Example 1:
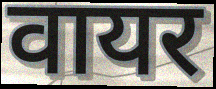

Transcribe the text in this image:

वायर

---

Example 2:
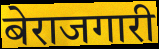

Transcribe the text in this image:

बेराजगारी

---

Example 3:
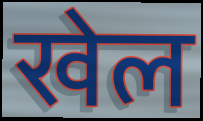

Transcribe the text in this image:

खेल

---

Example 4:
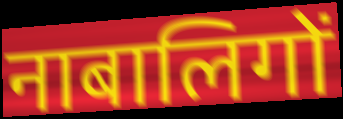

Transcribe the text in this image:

नाबालिगों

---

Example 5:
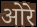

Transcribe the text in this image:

ओरे